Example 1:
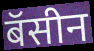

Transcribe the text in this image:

बॅसीन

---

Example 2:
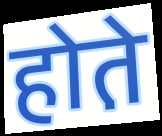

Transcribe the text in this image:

होत़े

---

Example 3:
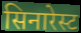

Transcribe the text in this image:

सिनारेस्ट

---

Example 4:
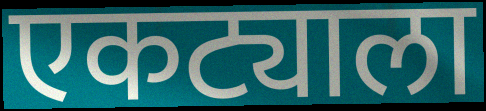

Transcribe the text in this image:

एकट्याला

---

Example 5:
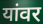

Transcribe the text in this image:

यांवर